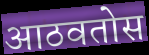
आठवतोस